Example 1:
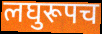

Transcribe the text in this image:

लघुरूपच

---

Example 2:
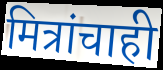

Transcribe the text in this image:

मित्रांचाही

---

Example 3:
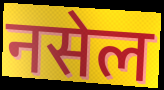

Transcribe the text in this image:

नसेल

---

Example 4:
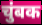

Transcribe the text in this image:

चुंबक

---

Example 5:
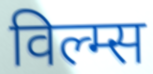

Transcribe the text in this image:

विल्म्स